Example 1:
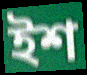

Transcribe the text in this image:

ইশ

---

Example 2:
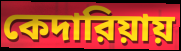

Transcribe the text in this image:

কেদারিয়ায়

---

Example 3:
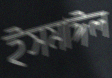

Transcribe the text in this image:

ইসমাঈল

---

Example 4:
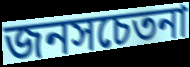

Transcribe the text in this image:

জনসচেতনা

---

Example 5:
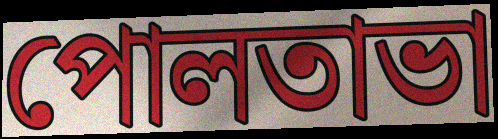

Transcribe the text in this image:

পোলতাভা